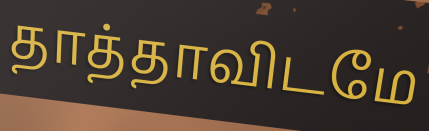
தாத்தாவிடமே